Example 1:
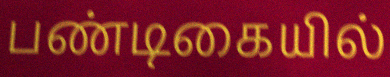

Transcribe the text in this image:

பண்டிகையில்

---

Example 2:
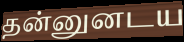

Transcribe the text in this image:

தன்னுனடய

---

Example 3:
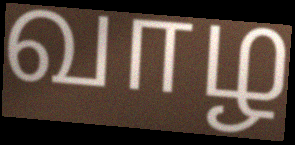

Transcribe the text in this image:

வாழ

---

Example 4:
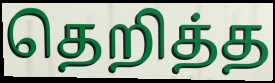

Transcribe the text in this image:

தெறித்த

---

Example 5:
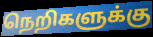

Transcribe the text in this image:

நெறிகளுக்கு